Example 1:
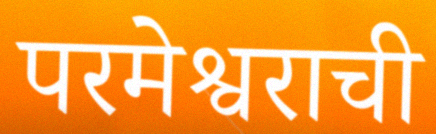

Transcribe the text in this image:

परमेश्वराची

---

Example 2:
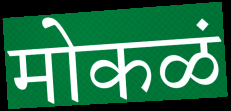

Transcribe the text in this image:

मोकळं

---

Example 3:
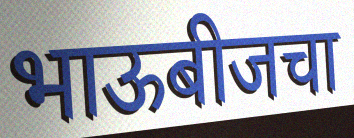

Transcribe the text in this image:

भाऊबीजचा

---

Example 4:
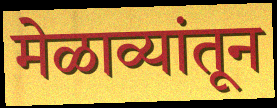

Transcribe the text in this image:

मेळाव्यांतून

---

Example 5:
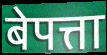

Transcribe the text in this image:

बेपत्ता